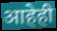
आहेही